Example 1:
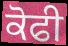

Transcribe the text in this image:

ਕੋਫੀ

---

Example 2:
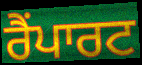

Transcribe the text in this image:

ਰੈਂਪਾਰਟ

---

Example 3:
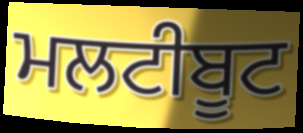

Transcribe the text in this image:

ਮਲਟੀਬੂਟ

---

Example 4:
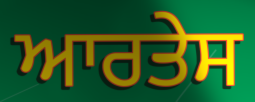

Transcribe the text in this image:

ਆਰਤੇਸ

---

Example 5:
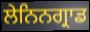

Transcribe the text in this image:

ਲੇਨਿਨਗ੍ਰਾਡ